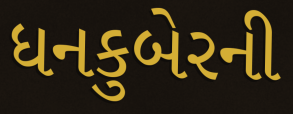
ધનકુબેરની